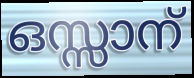
ഒസ്സാന്